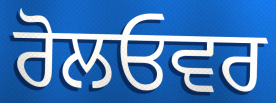
ਰੋਲਓਵਰ